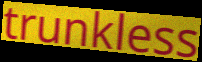
trunkless